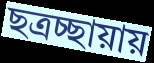
ছত্রচ্ছায়ায়